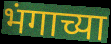
भंगाच्या